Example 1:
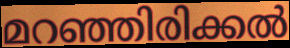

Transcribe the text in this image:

മറഞ്ഞിരിക്കൽ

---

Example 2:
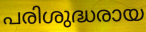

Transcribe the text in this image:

പരിശുദ്ധരായ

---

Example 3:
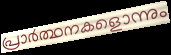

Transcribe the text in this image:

പ്രാർത്ഥനകളൊന്നും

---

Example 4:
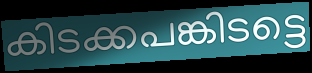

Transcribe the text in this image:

കിടക്കപങ്കിടട്ടെ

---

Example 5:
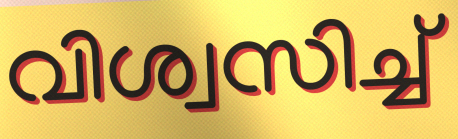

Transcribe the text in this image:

വിശ്വസിച്ച്